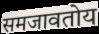
समजावतोय